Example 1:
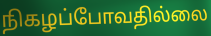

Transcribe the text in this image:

நிகழப்போவதில்லை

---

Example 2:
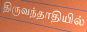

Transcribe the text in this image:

திருவந்தாதியில்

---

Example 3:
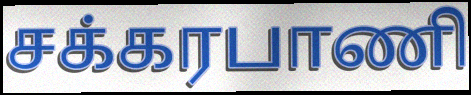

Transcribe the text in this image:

சக்கரபாணி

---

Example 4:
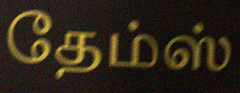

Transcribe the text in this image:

தேம்ஸ்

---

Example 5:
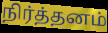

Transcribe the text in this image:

நிர்த்தனம்